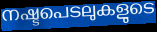
നഷ്ടപെടലുകളുടെ